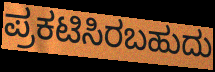
ಪ್ರಕಟಿಸಿರಬಹುದು